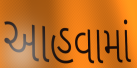
આહવામાં